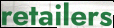
retailers